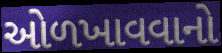
ઓળખાવવાનો